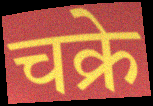
चक्रे